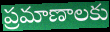
ప్రమాణాలకు